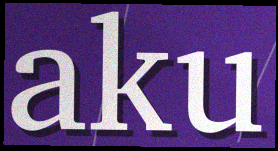
aku